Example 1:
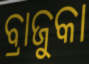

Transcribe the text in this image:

ବ୍ରାଜୁକା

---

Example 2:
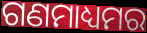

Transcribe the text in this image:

ଗଣମାଧ୍ୟମର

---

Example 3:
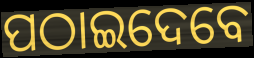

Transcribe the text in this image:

ପଠାଇଦେବେ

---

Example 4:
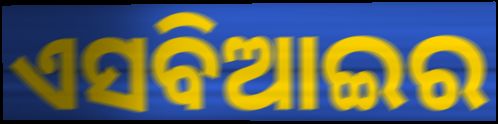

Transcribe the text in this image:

ଏସବିଆଇର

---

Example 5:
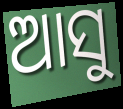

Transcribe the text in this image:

ଆସୁ